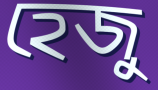
হেজু